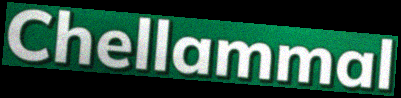
Chellammal